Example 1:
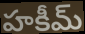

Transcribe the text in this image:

హకీమ్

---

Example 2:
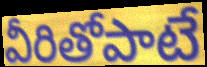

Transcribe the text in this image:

వీరితోపాటే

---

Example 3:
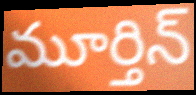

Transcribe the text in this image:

మూర్తిన్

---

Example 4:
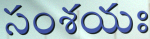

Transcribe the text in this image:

సంశయః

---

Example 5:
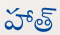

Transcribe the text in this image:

హాత్